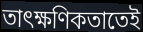
তাৎক্ষণিকতাতেই